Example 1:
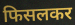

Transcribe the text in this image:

फिसलकर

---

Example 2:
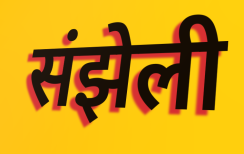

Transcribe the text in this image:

संझेली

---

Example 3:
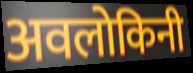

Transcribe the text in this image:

अवलोकिनी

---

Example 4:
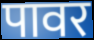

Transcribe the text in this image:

पावर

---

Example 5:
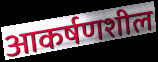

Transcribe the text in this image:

आकर्षणशील